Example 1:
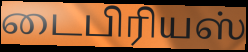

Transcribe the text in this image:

டைபிரியஸ்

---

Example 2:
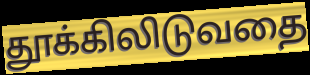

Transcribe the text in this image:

தூக்கிலிடுவதை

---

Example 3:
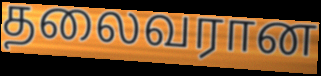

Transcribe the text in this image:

தலைவரான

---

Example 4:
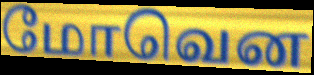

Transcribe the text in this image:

மோவென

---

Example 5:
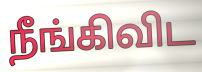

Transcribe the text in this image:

நீங்கிவிட